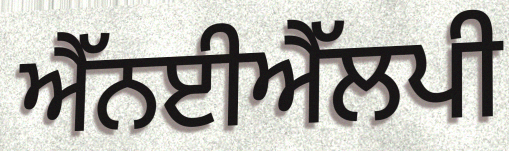
ਐੱਨਈਐੱਲਪੀ